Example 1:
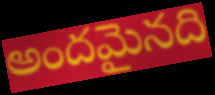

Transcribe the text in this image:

అందమైనది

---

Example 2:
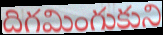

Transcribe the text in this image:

దిగమింగుకుని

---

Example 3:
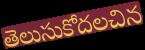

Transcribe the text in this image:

తెలుసుకోదలచిన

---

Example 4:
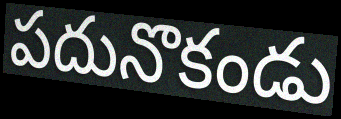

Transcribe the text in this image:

పదునొకండు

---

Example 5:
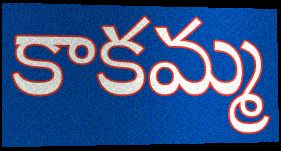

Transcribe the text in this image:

కాకమ్మ